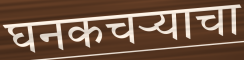
घनकचऱ्याचा